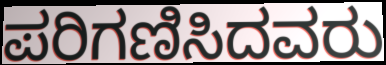
ಪರಿಗಣಿಸಿದವರು